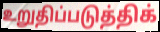
உறுதிப்படுத்திக்